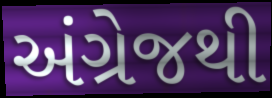
અંગ્રેજથી